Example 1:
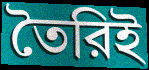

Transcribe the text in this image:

তৈরিই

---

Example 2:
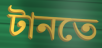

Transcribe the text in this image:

টানতে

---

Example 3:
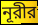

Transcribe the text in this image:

নূরীর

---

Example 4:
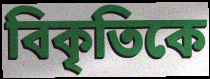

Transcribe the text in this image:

বিকৃতিকে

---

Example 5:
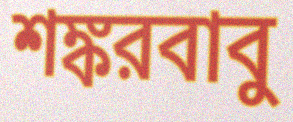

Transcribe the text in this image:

শঙ্করবাবু